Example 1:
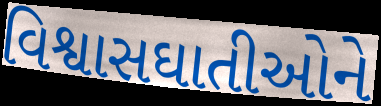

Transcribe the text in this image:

વિશ્વાસઘાતીઓને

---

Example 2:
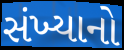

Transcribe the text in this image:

સંખ્યાનો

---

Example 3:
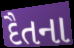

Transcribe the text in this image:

દૈતના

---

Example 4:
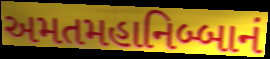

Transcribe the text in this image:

અમતમહાનિબ્બાનં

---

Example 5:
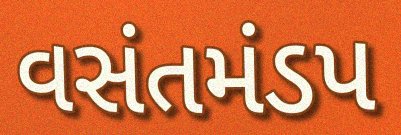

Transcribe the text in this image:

વસંતમંડપ